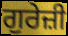
ਗੁਰੇਜ਼ੀ